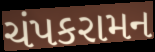
ચંપકરામન